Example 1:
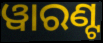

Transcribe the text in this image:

ୱାରଣ୍ଟ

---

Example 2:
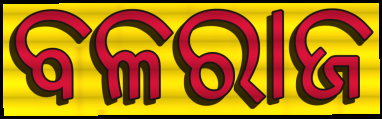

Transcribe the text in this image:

ବଳରାଜ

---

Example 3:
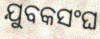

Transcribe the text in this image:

ଯୁବକସଂଘ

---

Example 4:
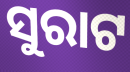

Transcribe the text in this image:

ସୁରାଟ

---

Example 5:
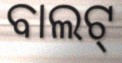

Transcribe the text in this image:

ବାଲଟ୍